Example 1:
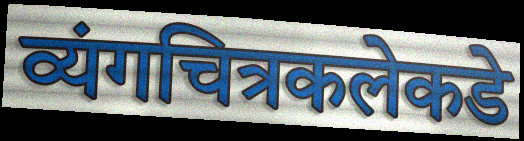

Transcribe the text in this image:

व्यंगचित्रकलेकडे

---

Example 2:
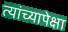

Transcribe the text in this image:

त्यांच्यापेक्षा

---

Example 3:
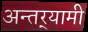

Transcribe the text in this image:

अन्तर्यामी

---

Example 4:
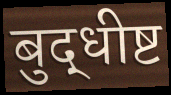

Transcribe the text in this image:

बुद्धीष्ट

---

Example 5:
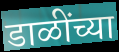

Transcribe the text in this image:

डाळींच्या